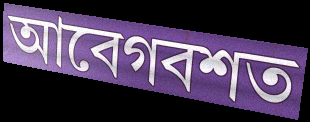
আবেগবশত